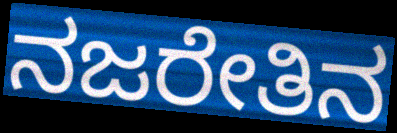
ನಜರೇತಿನ